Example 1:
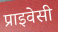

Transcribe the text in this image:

प्राइवेसी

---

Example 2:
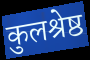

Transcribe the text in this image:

कुलश्रेष्ठ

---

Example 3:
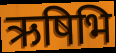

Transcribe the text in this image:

ऋषिभि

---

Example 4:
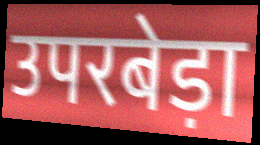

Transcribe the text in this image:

उपरबेड़ा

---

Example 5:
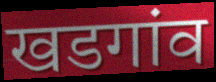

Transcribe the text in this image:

खडगांव